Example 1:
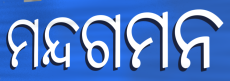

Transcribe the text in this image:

ମନ୍ଦଗମନ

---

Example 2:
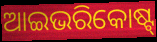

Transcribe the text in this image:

ଆଇଭରିକୋଷ୍ଟ୍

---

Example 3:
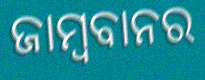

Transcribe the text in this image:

ଜାମ୍ବବାନର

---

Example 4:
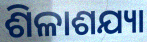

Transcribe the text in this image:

ଶିଳାଶଯ୍ୟା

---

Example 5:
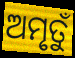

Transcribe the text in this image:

ଅମୃତୁଁ